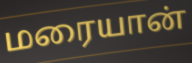
மரையான்